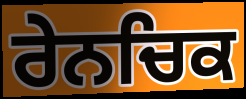
ਰੇਨਚਿਕ